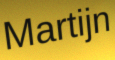
Martijn